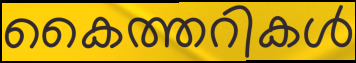
കൈത്തറികൾ